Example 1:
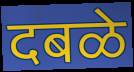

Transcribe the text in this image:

दबळे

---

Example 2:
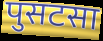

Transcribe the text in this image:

पुसटसा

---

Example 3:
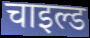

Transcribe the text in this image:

चाइल्ड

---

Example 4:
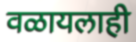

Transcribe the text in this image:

वळायलाही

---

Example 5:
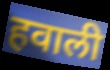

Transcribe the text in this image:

हवाली